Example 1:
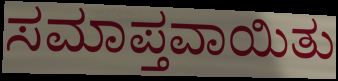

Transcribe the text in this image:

ಸಮಾಪ್ತವಾಯಿತು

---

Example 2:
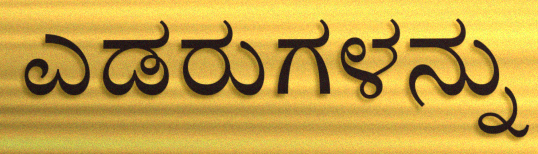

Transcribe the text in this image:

ಎಡರುಗಳನ್ನು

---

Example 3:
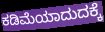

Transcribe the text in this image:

ಕಡಿಮೆಯಾದುದಕ್ಕೆ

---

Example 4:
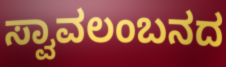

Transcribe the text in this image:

ಸ್ವಾವಲಂಬನದ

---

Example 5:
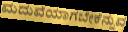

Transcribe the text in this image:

ಮದುವೆಯಾಗಬೇಕೆನ್ನುವ